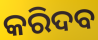
କରିଦବ